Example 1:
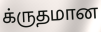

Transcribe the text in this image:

க்ருதமான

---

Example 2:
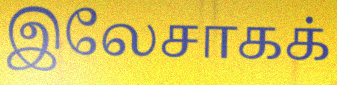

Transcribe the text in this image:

இலேசாகக்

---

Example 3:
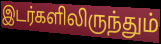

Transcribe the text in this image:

இடர்களிலிருந்தும்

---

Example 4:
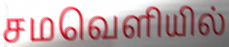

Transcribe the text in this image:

சமவெளியில்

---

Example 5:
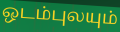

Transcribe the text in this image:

ஒடம்புலயும்